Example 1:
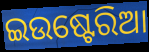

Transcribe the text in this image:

ଇଉଷ୍ଟେରିଆ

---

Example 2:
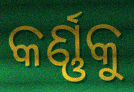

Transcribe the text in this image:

କର୍ଣ୍ଣକୁ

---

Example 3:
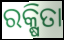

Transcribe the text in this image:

ରକ୍ଷିତା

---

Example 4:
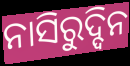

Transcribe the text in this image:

ନାସିରୁଦ୍ଦିନ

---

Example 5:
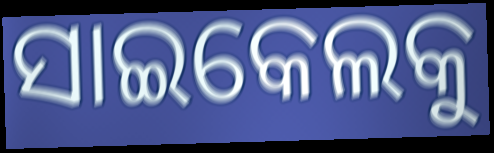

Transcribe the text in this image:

ସାଇକେଲକୁ